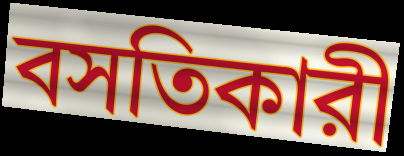
বসতিকারী